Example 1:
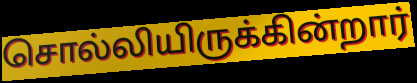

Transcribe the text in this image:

சொல்லியிருக்கின்றார்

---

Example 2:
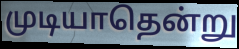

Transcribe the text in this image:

முடியாதென்று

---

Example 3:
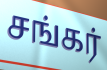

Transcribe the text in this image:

சங்கர்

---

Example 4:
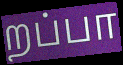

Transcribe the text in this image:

றப்பா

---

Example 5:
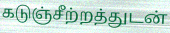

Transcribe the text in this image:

கடுஞ்சீற்றத்துடன்